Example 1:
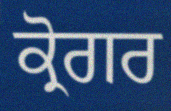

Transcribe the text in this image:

ਕ੍ਰੋਗਰ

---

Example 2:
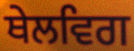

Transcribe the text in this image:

ਥੇਲਵਿਗ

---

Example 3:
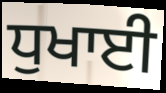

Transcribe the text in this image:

ਧੁਖਾਈ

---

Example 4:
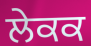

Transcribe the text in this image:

ਲੇਕਕ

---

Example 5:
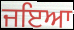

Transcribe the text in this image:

ਜਇਆ